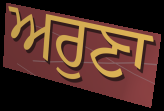
ਅਰੁਣਾ